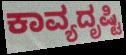
ಕಾವ್ಯದೃಷ್ಟಿ